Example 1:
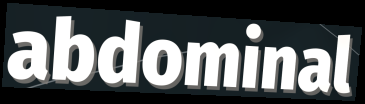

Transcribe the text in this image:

abdominal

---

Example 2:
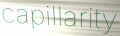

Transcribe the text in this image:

capillarity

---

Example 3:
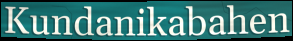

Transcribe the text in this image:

Kundanikabahen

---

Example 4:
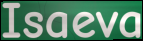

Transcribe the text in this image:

Isaeva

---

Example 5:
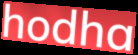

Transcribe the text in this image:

hodha